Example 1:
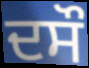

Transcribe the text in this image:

ਦਸੌ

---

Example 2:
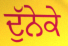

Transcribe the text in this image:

ਦੁੱਨੇਕੇ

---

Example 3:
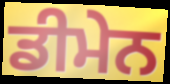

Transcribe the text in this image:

ਡੀਮੇਨ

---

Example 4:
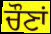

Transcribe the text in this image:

ਚੌਣਾਂ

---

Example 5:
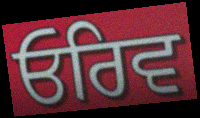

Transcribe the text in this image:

ਓਰਿਵ